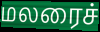
மலரைச்